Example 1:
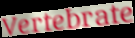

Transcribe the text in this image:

Vertebrate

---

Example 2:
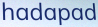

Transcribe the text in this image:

hadapad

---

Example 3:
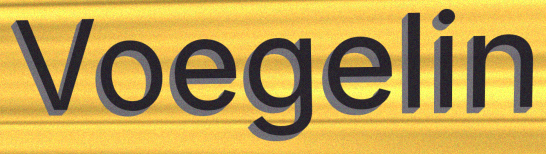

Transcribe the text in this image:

Voegelin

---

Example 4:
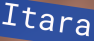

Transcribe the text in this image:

Itara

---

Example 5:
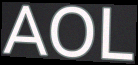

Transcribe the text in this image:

AOL